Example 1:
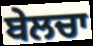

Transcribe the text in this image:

ਬੇਲਚਾ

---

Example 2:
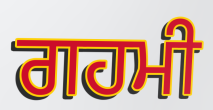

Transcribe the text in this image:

ਗਹਮੀ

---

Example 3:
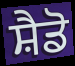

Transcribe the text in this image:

ਸ਼ੈਡੋ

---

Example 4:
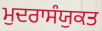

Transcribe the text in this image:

ਮੁਦਰਾਸੰਯੁਕਤ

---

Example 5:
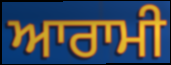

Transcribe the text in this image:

ਆਰਾਮੀ